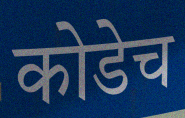
कोडेच